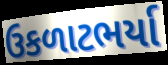
ઉકળાટભર્યા